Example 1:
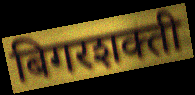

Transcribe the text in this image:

बिगरशक्ती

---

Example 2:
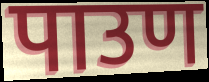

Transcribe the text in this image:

पाउण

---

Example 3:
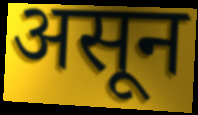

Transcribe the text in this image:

असून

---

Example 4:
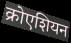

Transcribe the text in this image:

क्रोएशियन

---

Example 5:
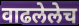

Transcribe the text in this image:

वाढलेलेच